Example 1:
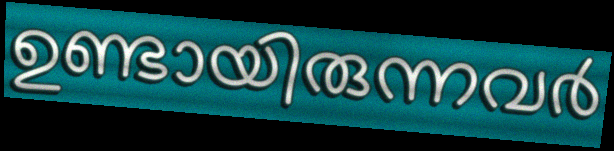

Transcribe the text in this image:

ഉണ്ടായിരുന്നവർ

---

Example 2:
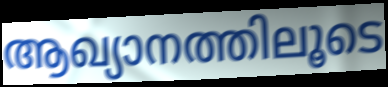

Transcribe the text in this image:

ആഖ്യാനത്തിലൂടെ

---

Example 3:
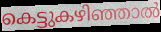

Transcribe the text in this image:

കെട്ടുകഴിഞ്ഞാൽ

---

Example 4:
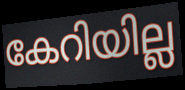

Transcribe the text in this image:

കേറിയില്ല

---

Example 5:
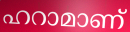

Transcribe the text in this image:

ഹറാമാണ്